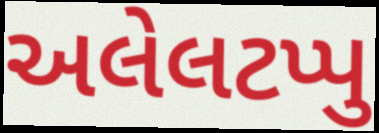
અલેલટપ્પુ